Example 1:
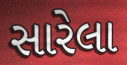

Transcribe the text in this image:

સારેલા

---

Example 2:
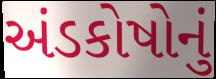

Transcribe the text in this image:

અંડકોષોનું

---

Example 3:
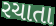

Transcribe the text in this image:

રચાતા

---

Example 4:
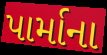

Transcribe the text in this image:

પાર્માના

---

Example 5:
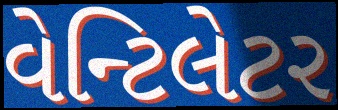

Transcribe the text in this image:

વેન્‍ટિલેટર